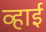
व्हाई